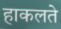
हाकलते